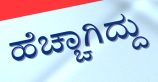
ಹೆಚ್ಚಾಗಿದ್ದು